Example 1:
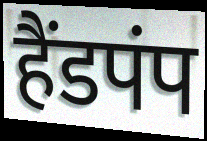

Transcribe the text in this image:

हैंडपंप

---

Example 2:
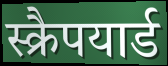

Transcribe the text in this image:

स्क्रैपयार्ड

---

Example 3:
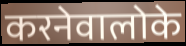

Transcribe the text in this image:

करनेवालोके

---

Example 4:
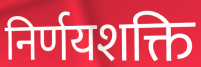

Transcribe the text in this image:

निर्णयशक्ति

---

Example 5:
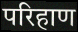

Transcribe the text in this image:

परिहाण